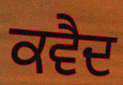
ਕਵੈਦ